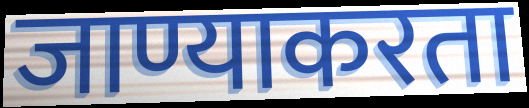
जाण्याकरता